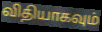
விதியாகவும்